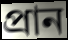
প্ৰান